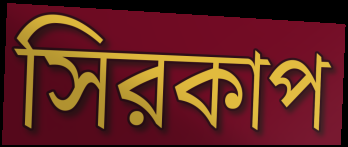
সিরকাপ